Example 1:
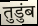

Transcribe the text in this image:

तुडुंब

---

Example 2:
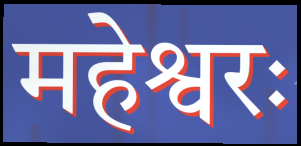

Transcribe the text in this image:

महेश्वरः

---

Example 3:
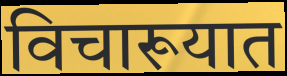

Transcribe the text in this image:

विचारूयात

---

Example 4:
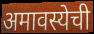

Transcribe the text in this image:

अमावस्येची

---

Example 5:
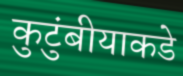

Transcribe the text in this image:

कुटुंबीयाकडे